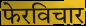
फेरविचार